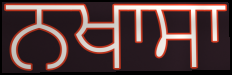
ਨਖਾਸਾ